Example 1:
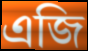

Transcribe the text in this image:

এজি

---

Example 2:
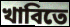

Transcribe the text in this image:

খাবিতে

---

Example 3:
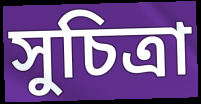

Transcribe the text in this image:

সুচিত্রা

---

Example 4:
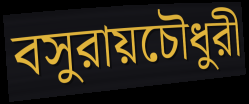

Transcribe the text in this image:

বসুরায়চৌধুরী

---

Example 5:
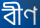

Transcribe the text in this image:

বীণ